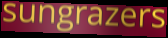
sungrazers